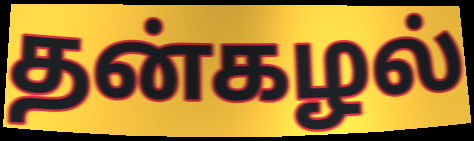
தன்கழல்